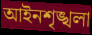
আইনশৃঙ্খলা